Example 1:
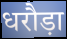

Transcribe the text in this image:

धरौड़ा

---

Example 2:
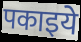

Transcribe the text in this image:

पकाइये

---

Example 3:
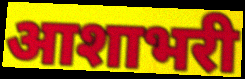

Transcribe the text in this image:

आशाभरी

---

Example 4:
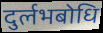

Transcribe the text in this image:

दुर्लभबोधि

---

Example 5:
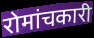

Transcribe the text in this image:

रोमांचकारी